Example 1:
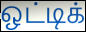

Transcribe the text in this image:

ஒட்டிக்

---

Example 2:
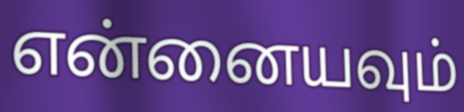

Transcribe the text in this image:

என்னையவும்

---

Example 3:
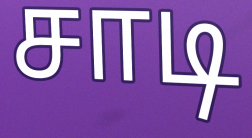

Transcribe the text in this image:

சாடி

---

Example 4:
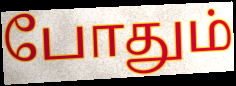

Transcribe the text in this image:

போதும்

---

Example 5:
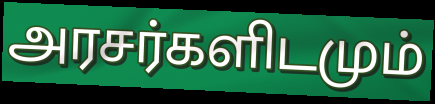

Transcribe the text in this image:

அரசர்களிடமும்